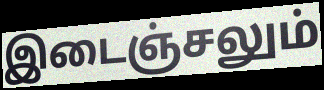
இடைஞ்சலும்